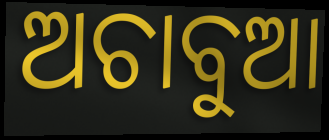
ଅଚାବୁଆ